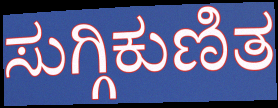
ಸುಗ್ಗಿಕುಣಿತ